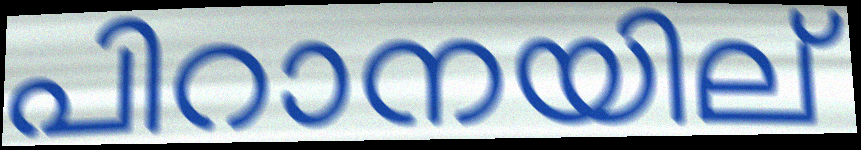
പിറാനയില്